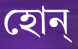
হোন্